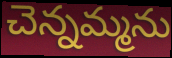
చెన్నమ్మను